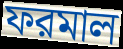
ফরমাল